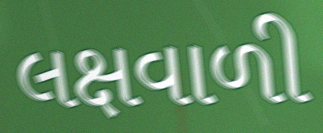
લક્ષવાળી